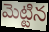
మెట్టిన